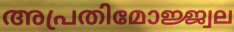
അപ്രതിമോജ്ജ്വല